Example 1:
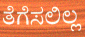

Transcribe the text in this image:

ತೆಗೆಸಲಿಲ್ಲ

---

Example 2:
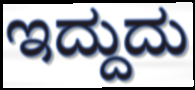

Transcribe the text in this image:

ಇದ್ದುದು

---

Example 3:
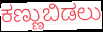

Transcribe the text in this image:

ಕಣ್ಣುಬಿಡಲು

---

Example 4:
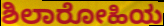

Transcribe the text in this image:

ಶಿಲಾರೋಹಿಯ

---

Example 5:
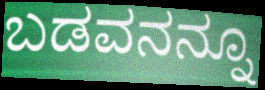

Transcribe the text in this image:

ಬಡವನನ್ನೂ